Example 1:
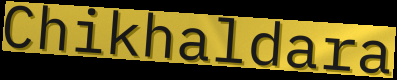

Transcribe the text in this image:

Chikhaldara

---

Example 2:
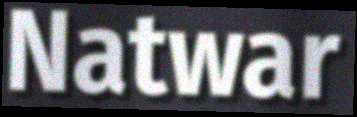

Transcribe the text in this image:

Natwar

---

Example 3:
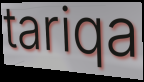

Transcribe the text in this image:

tariqa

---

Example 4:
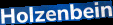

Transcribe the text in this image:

Holzenbein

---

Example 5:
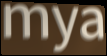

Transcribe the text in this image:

mya